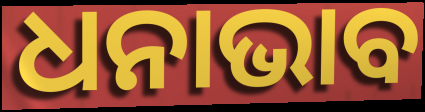
ଧନାଭାବ